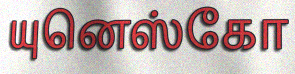
யுனெஸ்கோ